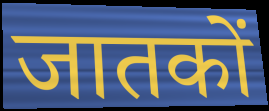
जातकों